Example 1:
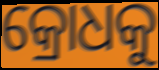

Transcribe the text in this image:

କ୍ରୋଧକୁ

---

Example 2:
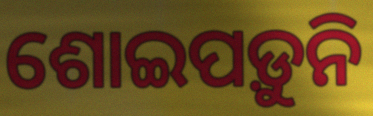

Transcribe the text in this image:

ଶୋଇପଡ଼ୁନି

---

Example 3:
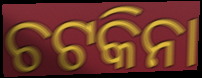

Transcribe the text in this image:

ଚଟକିନା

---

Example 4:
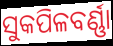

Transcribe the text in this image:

ସୁକପିଳବର୍ଣ୍ଣା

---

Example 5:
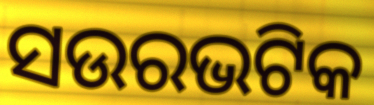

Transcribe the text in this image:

ସଉରଭଟିକ